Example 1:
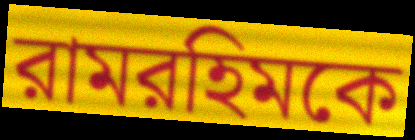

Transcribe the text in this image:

রামরহিমকে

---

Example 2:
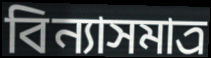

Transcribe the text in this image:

বিন্যাসমাত্র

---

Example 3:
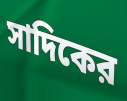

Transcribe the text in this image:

সাদিকের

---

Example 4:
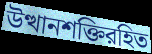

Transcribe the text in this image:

উত্থানশক্তিরহিত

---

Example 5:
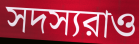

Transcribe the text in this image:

সদস্যরাও